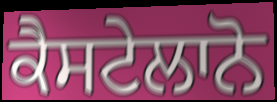
ਕੈਸਟੇਲਾਨੋ